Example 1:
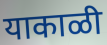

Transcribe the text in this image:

याकाळी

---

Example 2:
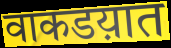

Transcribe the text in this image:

वाकडय़ात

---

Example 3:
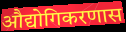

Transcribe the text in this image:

औद्योगिकरणास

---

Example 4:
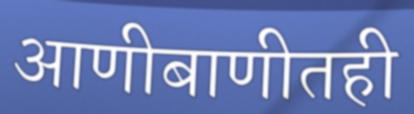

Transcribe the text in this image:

आणीबाणीतही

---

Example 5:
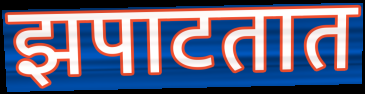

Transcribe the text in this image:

झपाटतात